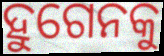
ହୁଗେନକୁ